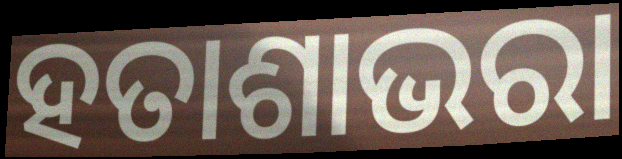
ହତାଶାଭରା